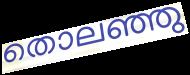
തൊലഞ്ഞു